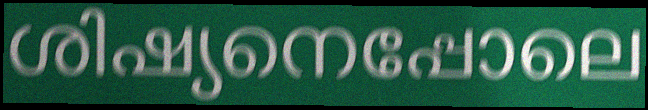
ശിഷ്യനെപ്പോലെ